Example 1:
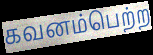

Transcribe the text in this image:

கவனம்பெற்ற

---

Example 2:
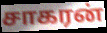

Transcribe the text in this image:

சாகரன்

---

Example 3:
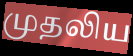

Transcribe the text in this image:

முதலிய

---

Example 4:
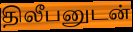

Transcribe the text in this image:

திலீபனுடன்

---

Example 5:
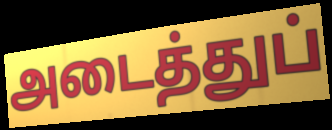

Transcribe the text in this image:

அடைத்துப்